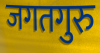
जगतगुरु